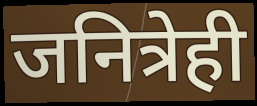
जनित्रेही